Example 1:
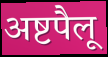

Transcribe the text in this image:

अष्टपैलू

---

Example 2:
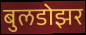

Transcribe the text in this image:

बुलडोझर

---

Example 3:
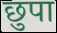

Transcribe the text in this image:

छुपा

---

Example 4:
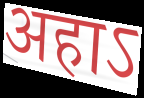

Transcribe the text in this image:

अहाऽ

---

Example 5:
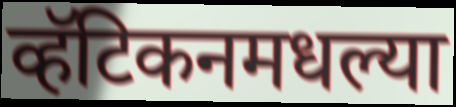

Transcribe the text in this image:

व्हॅटिकनमधल्या